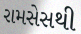
રામસેસથી